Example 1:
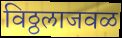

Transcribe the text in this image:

विठ्ठलाजवळ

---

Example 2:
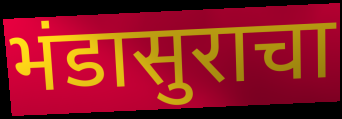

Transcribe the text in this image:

भंडासुराचा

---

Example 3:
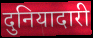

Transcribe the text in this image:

दुनियादारी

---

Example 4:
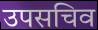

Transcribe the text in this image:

उपसचिव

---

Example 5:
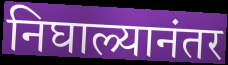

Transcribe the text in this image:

निघाल्यानंतर